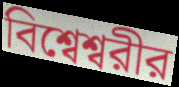
বিশ্বেশ্বরীর